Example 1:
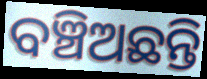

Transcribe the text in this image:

ବଞ୍ଚିଅଛନ୍ତି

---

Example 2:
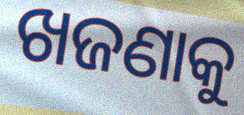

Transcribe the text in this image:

ଖଜଣାକୁ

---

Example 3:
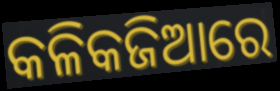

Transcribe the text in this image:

କଳିକଜିଆରେ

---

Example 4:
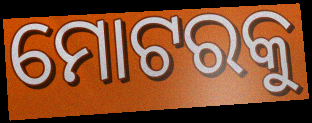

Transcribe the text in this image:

ମୋଟରକୁ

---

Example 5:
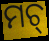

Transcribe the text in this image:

ମଚ୍